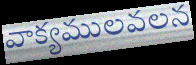
వాక్యములవలన